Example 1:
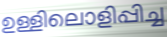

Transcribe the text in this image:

ഉള്ളിലൊളിപ്പിച്ച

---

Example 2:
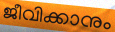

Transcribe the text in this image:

ജീവിക്കാനും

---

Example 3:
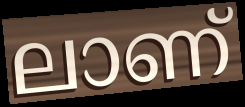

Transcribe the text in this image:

ലാണ്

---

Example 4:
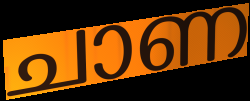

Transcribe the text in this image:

ചാണ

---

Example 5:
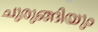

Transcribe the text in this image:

ചുരുങ്ങിയും